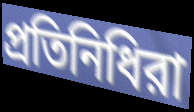
প্রতিনিধিরা